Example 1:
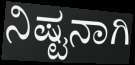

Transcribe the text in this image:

ನಿಷ್ಟನಾಗಿ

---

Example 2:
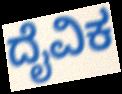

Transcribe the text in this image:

ದೈವಿಕ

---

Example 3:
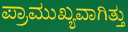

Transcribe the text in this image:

ಪ್ರಾಮುಖ್ಯವಾಗಿತ್ತು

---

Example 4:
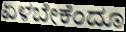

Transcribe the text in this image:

ಏಳಬೇಕೆಂದೂ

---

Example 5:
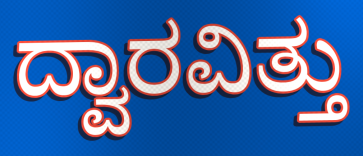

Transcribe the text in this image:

ದ್ವಾರವಿತ್ತು